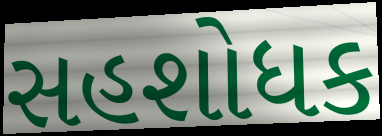
સહશોધક